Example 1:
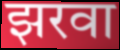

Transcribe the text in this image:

झरवा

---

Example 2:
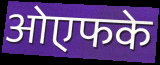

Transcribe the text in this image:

ओएफके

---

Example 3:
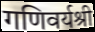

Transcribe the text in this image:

गणिवर्यश्री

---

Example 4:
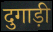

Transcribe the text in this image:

दुगाड़ी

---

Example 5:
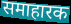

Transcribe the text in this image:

समाहारक